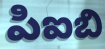
పిఐబి